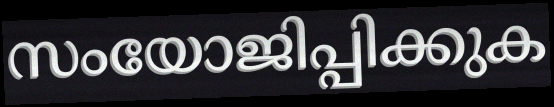
സംയോജിപ്പിക്കുക